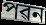
পৱন